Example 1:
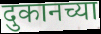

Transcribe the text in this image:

दुकानच्या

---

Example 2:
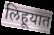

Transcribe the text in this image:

लिहूयात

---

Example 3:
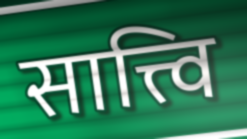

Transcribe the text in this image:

सात्त्वि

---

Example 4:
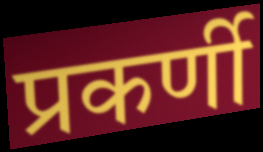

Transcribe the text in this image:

प्रकर्णी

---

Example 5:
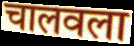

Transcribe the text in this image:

चालवला